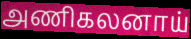
அணிகலனாய்